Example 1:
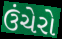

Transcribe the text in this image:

ઉંચેરો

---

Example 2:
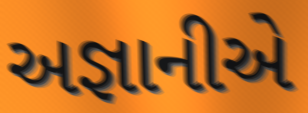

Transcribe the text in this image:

અજ્ઞાનીએ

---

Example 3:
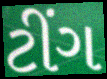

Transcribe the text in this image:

ટીંગ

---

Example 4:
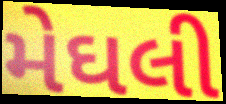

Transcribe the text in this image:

મેઘલી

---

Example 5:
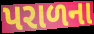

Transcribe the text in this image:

પરાળના